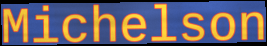
Michelson